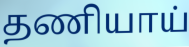
தணியாய்